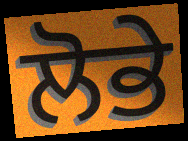
ਲੋਭੇ